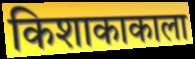
किशाकाकाला